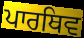
ਪਾਰਥਿਵ